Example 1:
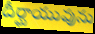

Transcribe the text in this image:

దీర్ఘాయువును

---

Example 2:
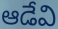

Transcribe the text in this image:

ఆడేవి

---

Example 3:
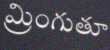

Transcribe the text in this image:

మ్రింగుతూ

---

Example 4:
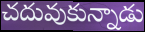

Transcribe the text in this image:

చదువుకున్నాడు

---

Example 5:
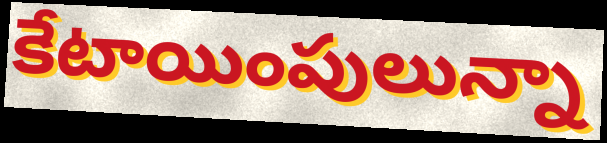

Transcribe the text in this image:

కేటాయింపులున్నా